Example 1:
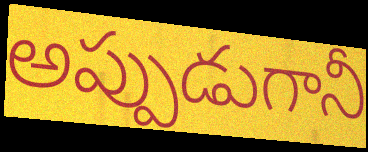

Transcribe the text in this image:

అప్పుడుగానీ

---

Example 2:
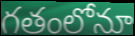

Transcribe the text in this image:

గతంలోనూ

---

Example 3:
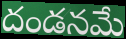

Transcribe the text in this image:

దండనమే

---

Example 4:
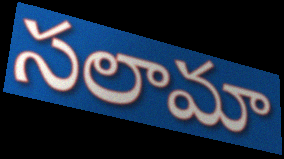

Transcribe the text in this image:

సలామా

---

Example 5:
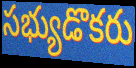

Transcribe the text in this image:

సభ్యుడొకరు